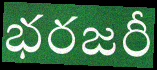
భరజరీ